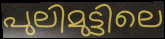
പുലിമുട്ടിലെ